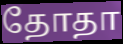
தோதா